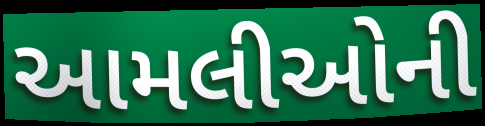
આમલીઓની